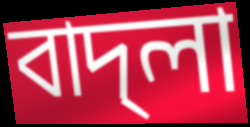
বাদ্‌লা